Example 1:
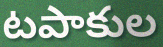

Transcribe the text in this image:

టపాకుల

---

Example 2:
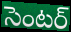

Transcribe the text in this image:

సెంటర్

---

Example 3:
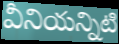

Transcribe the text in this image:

వీనియన్నిటి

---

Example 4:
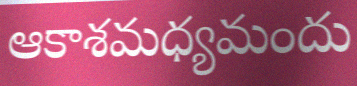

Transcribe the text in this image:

ఆకాశమధ్యమందు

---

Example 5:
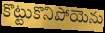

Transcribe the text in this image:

కొట్టుకొనిపోయెను